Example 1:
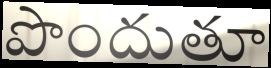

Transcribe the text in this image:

పొందుతూ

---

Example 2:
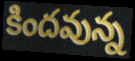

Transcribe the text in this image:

కిందవున్న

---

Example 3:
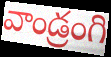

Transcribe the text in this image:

వాండ్రంగి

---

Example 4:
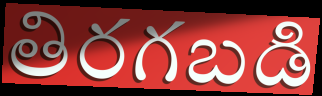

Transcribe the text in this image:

తిరగబడి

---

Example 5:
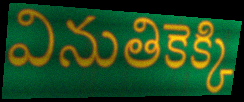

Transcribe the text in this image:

వినుతికెక్కి